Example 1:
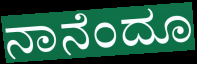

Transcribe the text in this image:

ನಾನೆಂದೂ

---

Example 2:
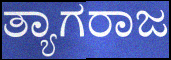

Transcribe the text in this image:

ತ್ಯಾಗರಾಜ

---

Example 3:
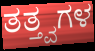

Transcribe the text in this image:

ತತ್ತ್ವಗಳ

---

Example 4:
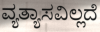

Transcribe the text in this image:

ವ್ಯತ್ಯಾಸವಿಲ್ಲದೆ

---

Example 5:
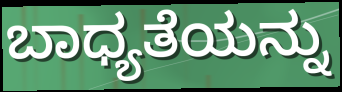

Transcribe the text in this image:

ಬಾಧ್ಯತೆಯನ್ನು